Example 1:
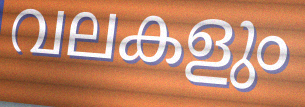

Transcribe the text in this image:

വലകളും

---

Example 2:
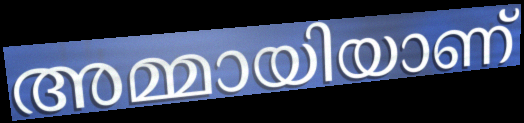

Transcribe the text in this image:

അമ്മായിയാണ്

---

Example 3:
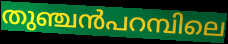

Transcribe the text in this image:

തുഞ്ചൻപറമ്പിലെ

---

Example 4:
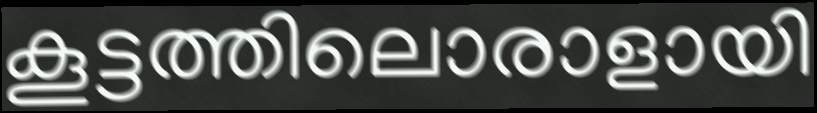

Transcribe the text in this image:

കൂട്ടത്തിലൊരാളായി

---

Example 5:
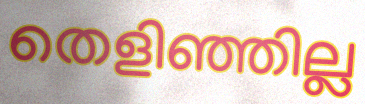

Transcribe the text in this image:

തെളിഞ്ഞില്ല